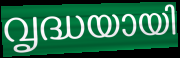
വൃദ്ധയായി